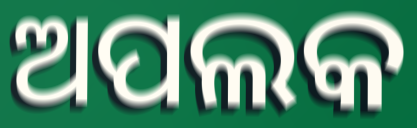
ଅପଲକ